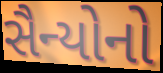
સૈન્યોનો